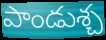
పాండుశ్చ